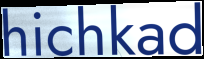
hichkad